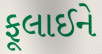
ફૂલાઈને